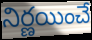
నిర్ణయించే